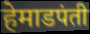
हेमाडपंती